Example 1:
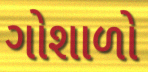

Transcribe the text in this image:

ગોશાળો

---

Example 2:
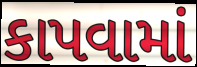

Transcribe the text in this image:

કાપવામાં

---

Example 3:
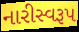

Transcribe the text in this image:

નારીસ્વરૂપ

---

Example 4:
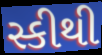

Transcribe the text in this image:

સ્કીથી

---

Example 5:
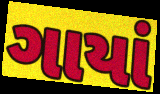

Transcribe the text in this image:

ગાયાં